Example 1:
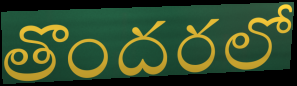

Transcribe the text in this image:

తొందరలో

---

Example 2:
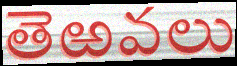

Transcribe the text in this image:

తెఱవలు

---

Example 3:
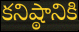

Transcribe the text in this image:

కనిష్ఠానికి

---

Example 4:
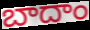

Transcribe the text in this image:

బాదాం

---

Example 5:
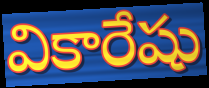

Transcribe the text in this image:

వికారేషు